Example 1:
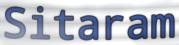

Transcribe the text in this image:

Sitaram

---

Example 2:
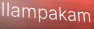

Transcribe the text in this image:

Ilampakam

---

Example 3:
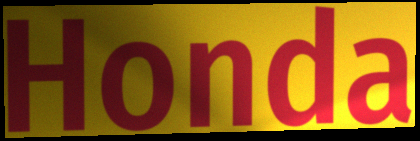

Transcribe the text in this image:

Honda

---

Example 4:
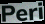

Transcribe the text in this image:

Peri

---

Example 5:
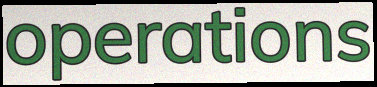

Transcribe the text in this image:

operations